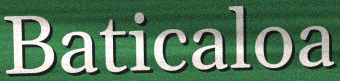
Baticaloa